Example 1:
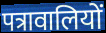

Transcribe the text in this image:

पत्रावालियों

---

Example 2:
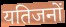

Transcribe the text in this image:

यतिजनों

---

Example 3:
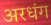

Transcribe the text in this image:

अरधंग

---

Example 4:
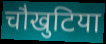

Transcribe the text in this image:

चौखुटिया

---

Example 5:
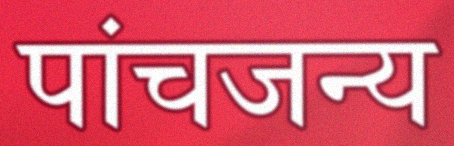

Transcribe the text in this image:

पांचजन्य